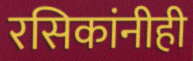
रसिकांनीही